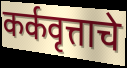
कर्कवृत्ताचे